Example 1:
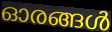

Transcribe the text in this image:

ഓരങ്ങൾ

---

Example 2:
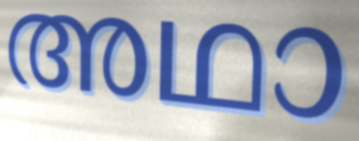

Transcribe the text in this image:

അഥാ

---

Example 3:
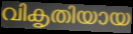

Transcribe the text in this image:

വികൃതിയായ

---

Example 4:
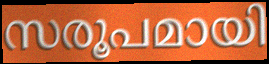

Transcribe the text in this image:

സരൂപമായി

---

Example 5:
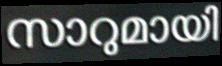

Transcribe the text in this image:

സാറുമായി